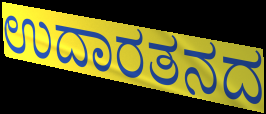
ಉದಾರತನದ